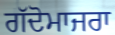
ਗੱਦੋਮਾਜਰਾ